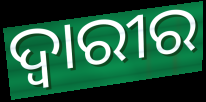
ଦ୍ୱାରୀର